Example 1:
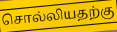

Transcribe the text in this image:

சொல்லியதற்கு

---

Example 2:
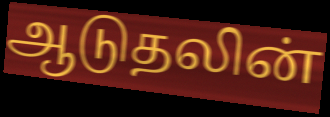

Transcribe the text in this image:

ஆடுதலின்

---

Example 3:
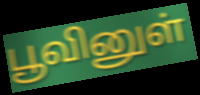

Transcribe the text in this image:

பூவினுள்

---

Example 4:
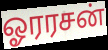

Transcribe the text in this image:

ஓரரசன்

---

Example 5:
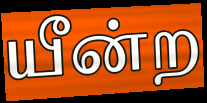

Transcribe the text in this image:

யீன்ற